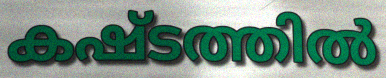
കഷ്ടത്തിൽ